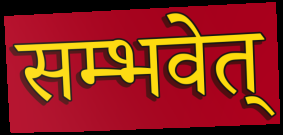
सम्भवेत्